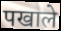
पखाले